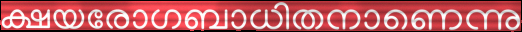
ക്ഷയരോഗബാധിതനാണെന്നു